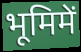
भूमिमें